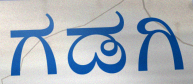
ಗಡಗಿ